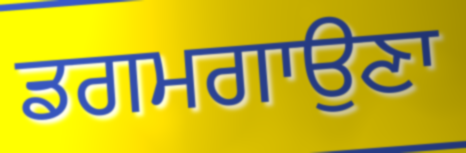
ਡਗਮਗਾਉਣਾ